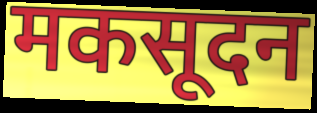
मकसूदन